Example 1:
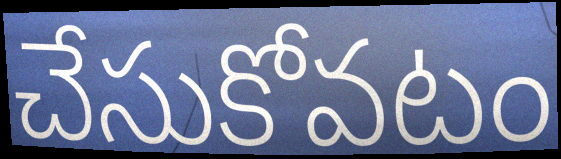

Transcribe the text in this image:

చేసుకోవటం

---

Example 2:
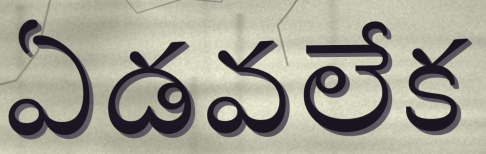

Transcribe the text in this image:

ఏడవలేక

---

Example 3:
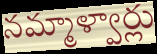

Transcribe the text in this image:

నమ్మాళ్వార్లు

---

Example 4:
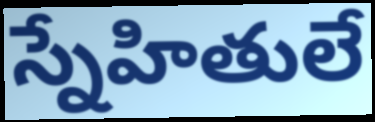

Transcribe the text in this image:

స్నేహితులే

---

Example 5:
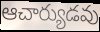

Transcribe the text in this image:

ఆచార్యుడవు